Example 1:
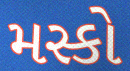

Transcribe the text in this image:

મસ્કો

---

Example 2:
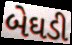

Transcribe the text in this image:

બેઘડી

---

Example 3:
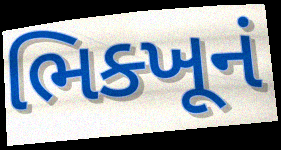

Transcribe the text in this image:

ભિક્ખૂનં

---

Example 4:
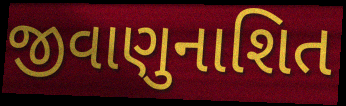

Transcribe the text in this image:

જીવાણુનાશિત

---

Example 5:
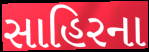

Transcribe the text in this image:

સાહિરના